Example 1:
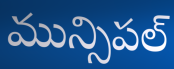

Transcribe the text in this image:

మున్సిపల్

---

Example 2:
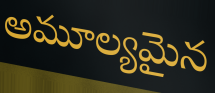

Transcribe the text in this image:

అమూల్యమైన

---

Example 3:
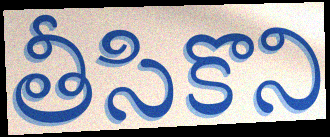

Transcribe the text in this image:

తీసికొని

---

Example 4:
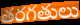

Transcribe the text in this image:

తరగతులు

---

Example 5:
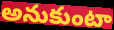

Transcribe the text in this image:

అనుకుంటా